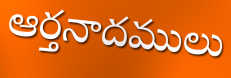
ఆర్తనాదములు